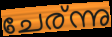
ചേര്ന്നു